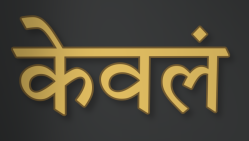
केवलं